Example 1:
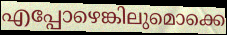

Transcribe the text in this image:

എപ്പോഴെങ്കിലുമൊക്കെ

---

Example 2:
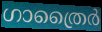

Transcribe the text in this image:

ഗാത്രൈർ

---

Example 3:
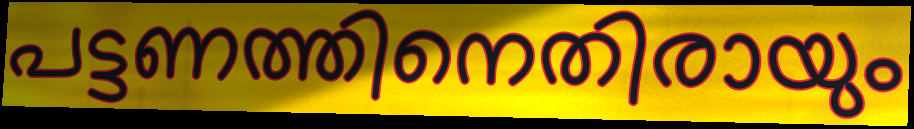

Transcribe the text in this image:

പട്ടണത്തിനെതിരായും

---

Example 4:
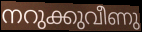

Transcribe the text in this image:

നറുക്കുവീണു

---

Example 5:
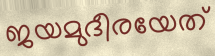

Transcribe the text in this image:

ജയമുദീരയേത്